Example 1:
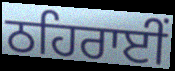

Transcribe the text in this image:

ਠਹਿਰਾਈਂ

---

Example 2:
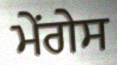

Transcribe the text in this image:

ਮੇਂਗੇਸ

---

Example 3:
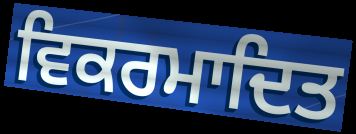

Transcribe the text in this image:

ਵਿਕਰਮਾਦਿਤ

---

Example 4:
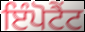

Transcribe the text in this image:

ਇੰਪੋਟੈਂਟ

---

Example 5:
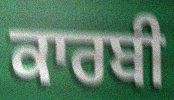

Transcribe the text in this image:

ਕਾਰਬੀ